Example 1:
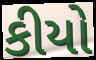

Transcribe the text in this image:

કીયો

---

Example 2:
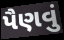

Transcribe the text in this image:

પૈણવું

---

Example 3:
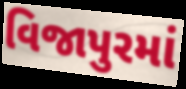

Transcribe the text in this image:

વિજાપુરમાં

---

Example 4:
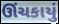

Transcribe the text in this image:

ઊંચકાયું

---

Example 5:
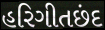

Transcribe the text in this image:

હરિગીતછંદ